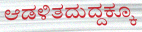
ಆಡಳಿತದುದ್ದಕ್ಕೂ